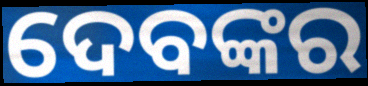
ଦେବଙ୍କର